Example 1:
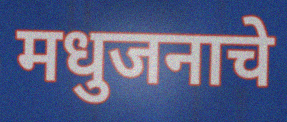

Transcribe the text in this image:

मधुजनाचे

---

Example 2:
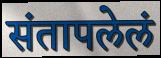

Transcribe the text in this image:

संतापलेलं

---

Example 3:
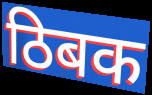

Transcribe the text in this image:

ठिबक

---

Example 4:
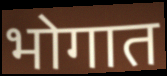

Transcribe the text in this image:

भोगात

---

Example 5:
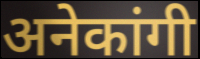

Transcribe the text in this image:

अनेकांगी